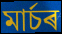
মাৰ্চৰ